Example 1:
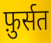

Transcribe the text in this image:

फ़ुर्सत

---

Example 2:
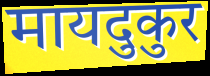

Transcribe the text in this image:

मायदुकुर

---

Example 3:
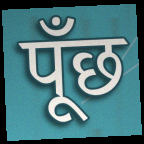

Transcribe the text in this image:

पूँछ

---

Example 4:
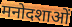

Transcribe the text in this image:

मनोदशाओं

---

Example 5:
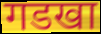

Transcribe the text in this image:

गडखा